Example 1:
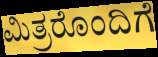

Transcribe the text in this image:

ಮಿತ್ರರೊಂದಿಗೆ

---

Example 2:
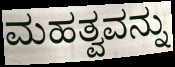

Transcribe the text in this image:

ಮಹತ್ವವನ್ನು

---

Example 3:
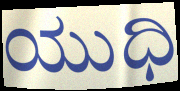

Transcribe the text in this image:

ಯುಧಿ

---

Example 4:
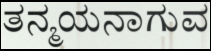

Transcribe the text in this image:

ತನ್ಮಯನಾಗುವ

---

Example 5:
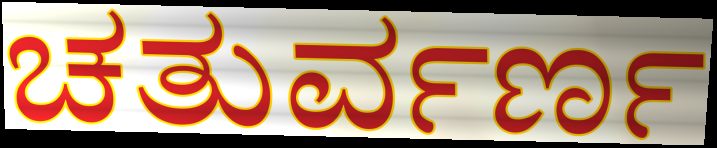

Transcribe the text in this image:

ಚತುರ್ವರ್ಣ